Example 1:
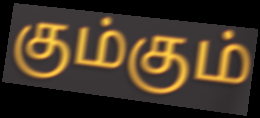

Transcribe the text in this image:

கும்கும்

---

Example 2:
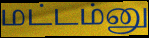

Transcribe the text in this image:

மட்டம்னு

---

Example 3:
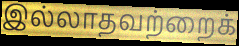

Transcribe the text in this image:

இல்லாதவற்றைக்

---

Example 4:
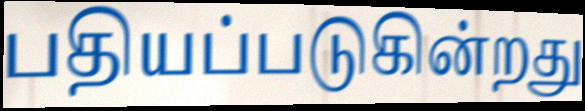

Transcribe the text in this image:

பதியப்படுகின்றது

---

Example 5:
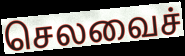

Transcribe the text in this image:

செலவைச்